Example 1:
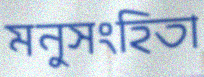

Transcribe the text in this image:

মনুসংহিতা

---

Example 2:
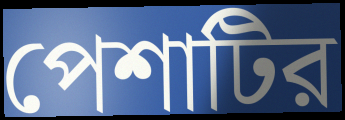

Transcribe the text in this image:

পেশাটির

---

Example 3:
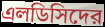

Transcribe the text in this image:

এলডিসিদের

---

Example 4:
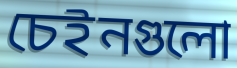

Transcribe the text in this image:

চেইনগুলো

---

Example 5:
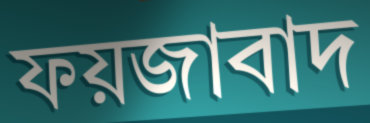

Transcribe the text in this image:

ফয়জাবাদ